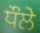
ਧੌਲੇ